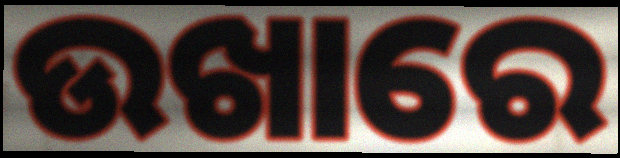
ଉଖାରେ